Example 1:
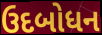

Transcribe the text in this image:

ઉદબોધન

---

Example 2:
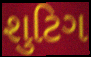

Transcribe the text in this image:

શુટિગ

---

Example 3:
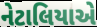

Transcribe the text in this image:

નેટાલિયાએ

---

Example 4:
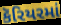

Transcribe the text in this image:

કૅરિયરમાં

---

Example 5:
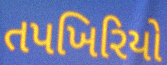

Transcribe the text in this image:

તપખિરિયો